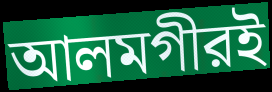
আলমগীরই